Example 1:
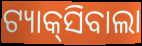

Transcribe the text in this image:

ଟ୍ୟାକ୍‌ସିବାଲା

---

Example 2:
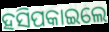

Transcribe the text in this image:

ହସିପକାଇଲେ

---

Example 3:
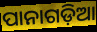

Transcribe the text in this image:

ପାନାଗଡ଼ିଆ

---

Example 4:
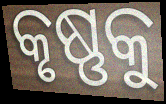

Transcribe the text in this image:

କୃଷ୍ଣକୁ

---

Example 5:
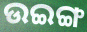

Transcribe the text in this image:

ଉଇଙ୍ଗ